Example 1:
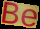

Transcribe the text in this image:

Be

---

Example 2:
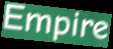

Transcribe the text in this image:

Empire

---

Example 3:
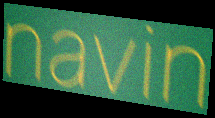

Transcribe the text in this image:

navin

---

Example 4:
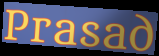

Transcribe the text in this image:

Prasad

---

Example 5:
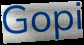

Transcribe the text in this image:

Gopi